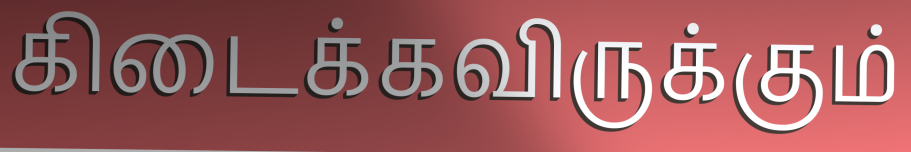
கிடைக்கவிருக்கும்